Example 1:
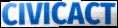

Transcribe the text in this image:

CIVICACT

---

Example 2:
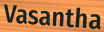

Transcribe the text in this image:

Vasantha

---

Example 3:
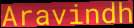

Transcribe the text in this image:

Aravindh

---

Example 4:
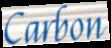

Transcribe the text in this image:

Carbon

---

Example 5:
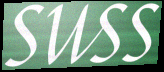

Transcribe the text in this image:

suss